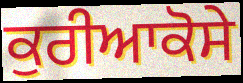
ਕੁਰੀਆਕੋਸੇ